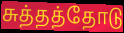
சுத்தத்தோடு